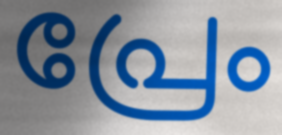
പ്രേം